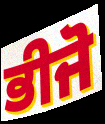
ਭੀਜੋ